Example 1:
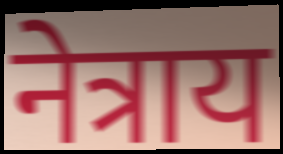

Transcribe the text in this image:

नेत्राय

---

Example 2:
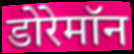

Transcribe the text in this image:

डोरेमॉन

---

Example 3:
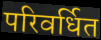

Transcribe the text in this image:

परिवर्धित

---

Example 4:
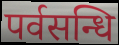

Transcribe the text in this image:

पर्वसन्धि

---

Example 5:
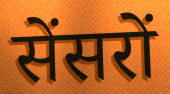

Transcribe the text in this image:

सेंसरों